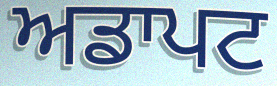
ਅਡਾਪਟ